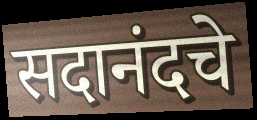
सदानंदचे